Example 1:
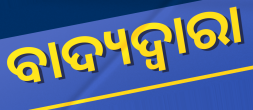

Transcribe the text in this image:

ବାଦ୍ୟଦ୍ୱାରା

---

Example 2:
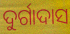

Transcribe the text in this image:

ଦୁର୍ଗାଦାସ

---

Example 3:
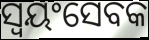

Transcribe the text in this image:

ସ୍ୱୟଂସେବକ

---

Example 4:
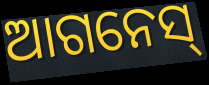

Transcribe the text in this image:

ଆଗନେସ୍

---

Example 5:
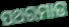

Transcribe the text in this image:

ପଥରମାଡ